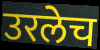
उरलेच